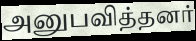
அனுபவித்தனர்